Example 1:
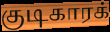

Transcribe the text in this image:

குடிகாரக்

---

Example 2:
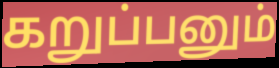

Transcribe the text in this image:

கறுப்பனும்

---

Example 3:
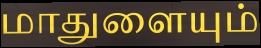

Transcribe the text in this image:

மாதுளையும்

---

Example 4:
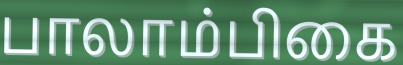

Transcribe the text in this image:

பாலாம்பிகை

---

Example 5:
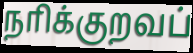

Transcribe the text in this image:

நரிக்குறவப்